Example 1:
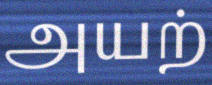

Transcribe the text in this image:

அயற்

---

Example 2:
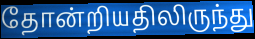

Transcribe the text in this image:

தோன்றியதிலிருந்து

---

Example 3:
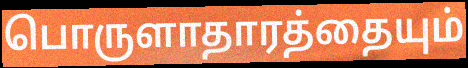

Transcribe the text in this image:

பொருளாதாரத்தையும்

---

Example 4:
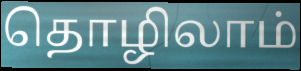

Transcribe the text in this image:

தொழிலாம்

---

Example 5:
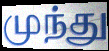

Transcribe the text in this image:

முந்து